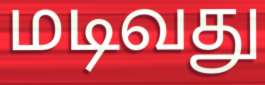
மடிவது